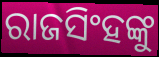
ରାଜସିଂହଙ୍କୁ